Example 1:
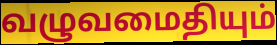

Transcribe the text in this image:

வழுவமைதியும்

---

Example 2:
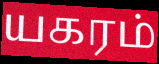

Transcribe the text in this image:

யகரம்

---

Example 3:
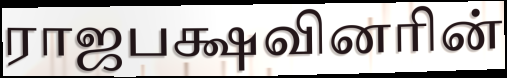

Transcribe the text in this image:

ராஜபக்ஷவினரின்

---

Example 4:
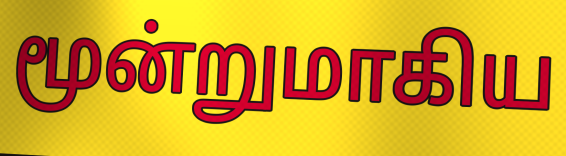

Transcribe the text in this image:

மூன்றுமாகிய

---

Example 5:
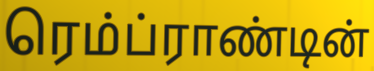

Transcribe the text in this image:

ரெம்ப்ராண்டின்